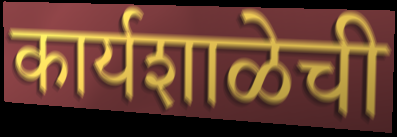
कार्यशाळेची